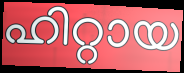
ഹിറ്റായ